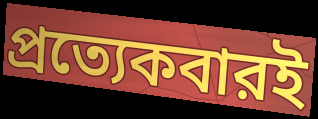
প্রত্যেকবারই